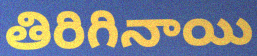
తిరిగినాయి